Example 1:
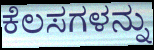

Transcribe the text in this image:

ಕೆಲಸಗಳನ್ನು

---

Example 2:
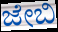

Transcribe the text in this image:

ಜೇಬಿ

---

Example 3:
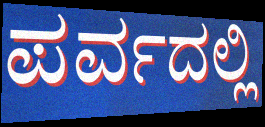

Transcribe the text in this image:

ಪರ್ವದಲ್ಲಿ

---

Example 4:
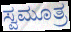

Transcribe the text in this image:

ಸ್ವಮೂತ್ರ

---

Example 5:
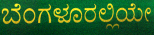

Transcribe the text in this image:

ಬೆಂಗಳೂರಲ್ಲಿಯೇ